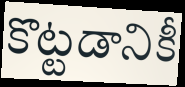
కొట్టడానికీ